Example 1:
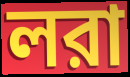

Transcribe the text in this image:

লরা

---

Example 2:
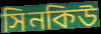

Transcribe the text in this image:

সিনকিউ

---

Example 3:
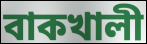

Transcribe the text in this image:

বাকখালী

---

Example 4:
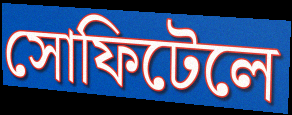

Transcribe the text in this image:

সোফিটেলে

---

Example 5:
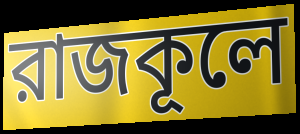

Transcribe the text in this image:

রাজকূলে